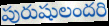
పురుషులందరి